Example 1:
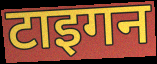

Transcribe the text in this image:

टाइगन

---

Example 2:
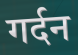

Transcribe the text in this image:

गर्दन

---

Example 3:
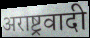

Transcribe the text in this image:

अराष्ट्रवादी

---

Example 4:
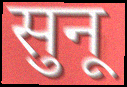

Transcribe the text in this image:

सुनू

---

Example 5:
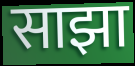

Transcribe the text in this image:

साझा